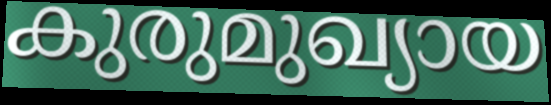
കുരുമുഖ്യായ